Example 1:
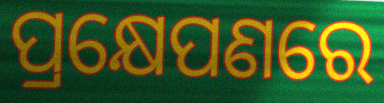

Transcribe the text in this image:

ପ୍ରକ୍ଷେପଣରେ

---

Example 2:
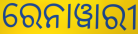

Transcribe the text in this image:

ରେନାୱାରୀ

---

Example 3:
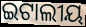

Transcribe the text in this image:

ଇଟାଲୀୟ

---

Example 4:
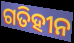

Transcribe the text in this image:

ଗତିହୀନ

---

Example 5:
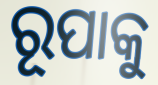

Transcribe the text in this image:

ରୂପାକୁ